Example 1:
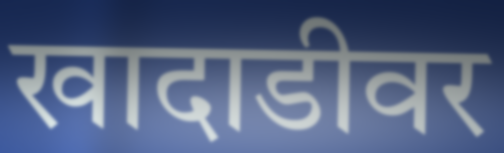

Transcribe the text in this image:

खादाडीवर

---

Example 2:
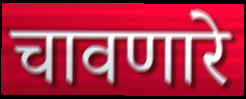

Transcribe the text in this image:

चावणारे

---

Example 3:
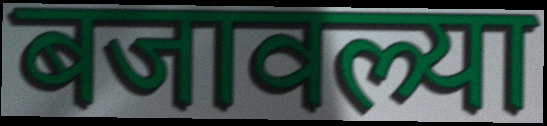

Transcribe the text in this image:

बजावल्या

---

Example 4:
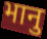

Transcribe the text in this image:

भानु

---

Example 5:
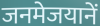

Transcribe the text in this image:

जनमेजयानें